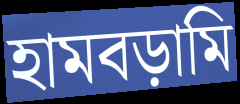
হামবড়ামি